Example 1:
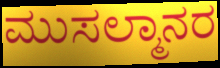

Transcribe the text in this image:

ಮುಸಲ್ಮಾನರ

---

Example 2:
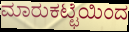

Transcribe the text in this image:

ಮಾರುಕಟ್ಟೆಯಿಂದ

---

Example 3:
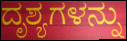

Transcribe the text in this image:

ದೃಶ್ಯಗಳನ್ನು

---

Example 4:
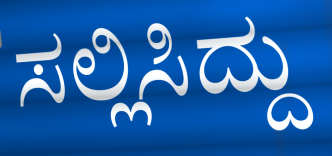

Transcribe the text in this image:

ಸಲ್ಲಿಸಿದ್ದು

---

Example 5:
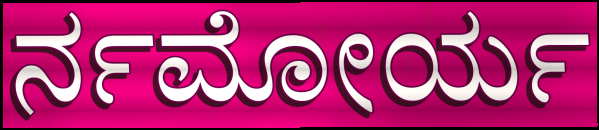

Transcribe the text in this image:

ರ್ನಮೋರ್ಯ